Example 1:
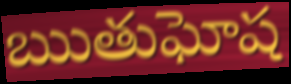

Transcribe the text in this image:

ఋతుఘోష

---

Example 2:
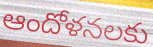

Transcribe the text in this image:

ఆందోళనలకు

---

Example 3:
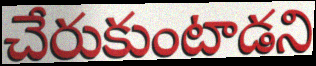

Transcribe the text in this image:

చేరుకుంటాడని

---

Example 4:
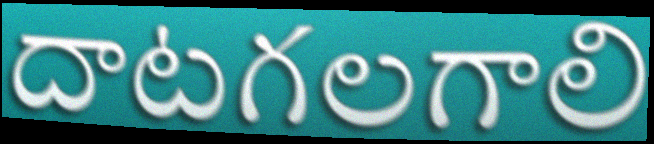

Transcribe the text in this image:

దాటగలగాలి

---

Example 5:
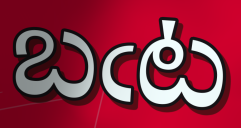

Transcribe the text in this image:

బఁట